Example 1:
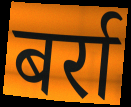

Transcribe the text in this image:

बर्रा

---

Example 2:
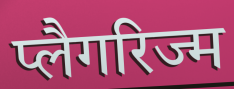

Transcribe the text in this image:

प्लैगरिज्म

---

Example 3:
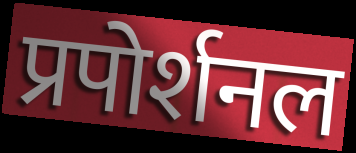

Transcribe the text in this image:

प्रपोर्शनल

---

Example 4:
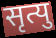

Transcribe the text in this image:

सृत्यु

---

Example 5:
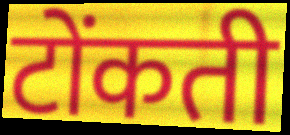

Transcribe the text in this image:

टोंकती